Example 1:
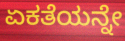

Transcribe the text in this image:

ಏಕತೆಯನ್ನೇ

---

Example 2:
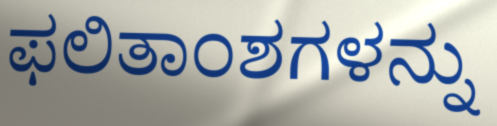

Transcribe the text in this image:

ಫಲಿತಾಂಶಗಳನ್ನು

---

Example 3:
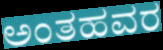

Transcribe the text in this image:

ಅಂತಹವರ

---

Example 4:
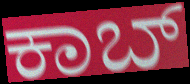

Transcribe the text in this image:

ಕಾಬ್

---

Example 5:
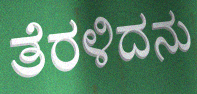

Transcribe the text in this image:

ತೆರಳಿದನು